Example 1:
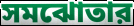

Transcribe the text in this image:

সমঝোতার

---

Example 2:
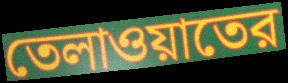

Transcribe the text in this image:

তেলাওয়াতের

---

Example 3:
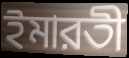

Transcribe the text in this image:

ইমারতী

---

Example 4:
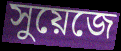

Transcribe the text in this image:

সুয়েজে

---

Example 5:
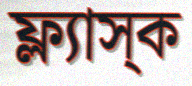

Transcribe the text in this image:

ফ্ল্যাস্‌ক